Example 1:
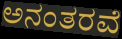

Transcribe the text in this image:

ಅನಂತರವೆ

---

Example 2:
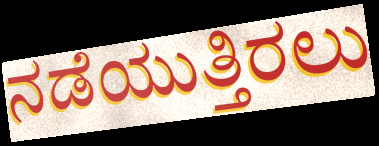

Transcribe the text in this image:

ನಡೆಯುತ್ತಿರಲು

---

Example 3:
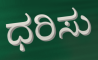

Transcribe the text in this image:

ಧರಿಸು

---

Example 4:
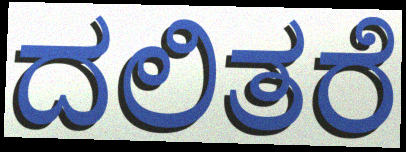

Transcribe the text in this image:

ದಲಿತರೆ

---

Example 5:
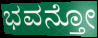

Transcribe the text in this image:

ಭವನ್ತೋ